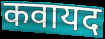
कवायद